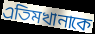
এতিমখানাকে